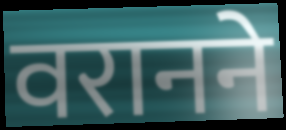
वरानने